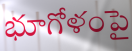
భూగోళంపై